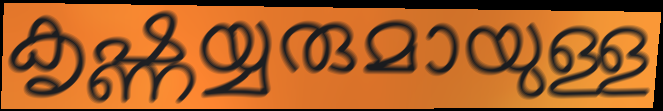
കൃഷ്ണയ്യരുമായുള്ള